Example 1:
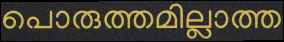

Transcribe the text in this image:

പൊരുത്തമില്ലാത്ത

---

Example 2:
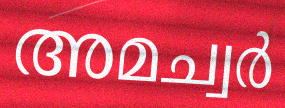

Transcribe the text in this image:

അമച്വർ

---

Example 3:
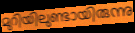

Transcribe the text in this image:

മുറിയിലുണ്ടായിരുന്നു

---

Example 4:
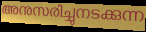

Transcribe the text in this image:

അനുസരിച്ചുനടക്കുന്ന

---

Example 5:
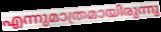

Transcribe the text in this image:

എന്നുമാത്രമായിരുന്നു